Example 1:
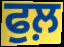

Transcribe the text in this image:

ਫੁਲ਼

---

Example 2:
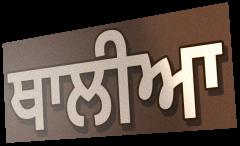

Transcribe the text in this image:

ਥਾਲੀਆ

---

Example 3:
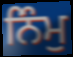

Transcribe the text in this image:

ਨਿੰਮੁ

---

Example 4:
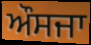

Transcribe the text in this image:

ਔਸਜਾ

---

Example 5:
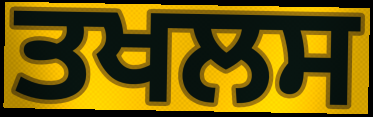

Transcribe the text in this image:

ਤਖਲਸ